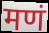
मणं